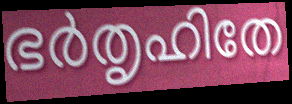
ഭർതൃഹിതേ